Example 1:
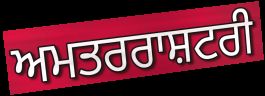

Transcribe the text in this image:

ਅਮਤਰਰਾਸ਼ਟਰੀ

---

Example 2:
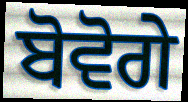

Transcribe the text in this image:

ਬੋਵੋਗੇ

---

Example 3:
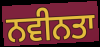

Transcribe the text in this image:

ਨਵੀਨਤਾ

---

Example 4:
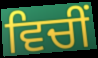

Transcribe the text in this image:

ਵਿਚੀਂ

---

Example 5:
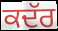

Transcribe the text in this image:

ਕਦੱਰ